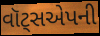
વૉટ્સએપની